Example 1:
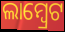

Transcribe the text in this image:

ଲାମ୍ୱ୍ରେଟ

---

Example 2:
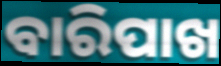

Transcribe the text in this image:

ବାରିପାଖ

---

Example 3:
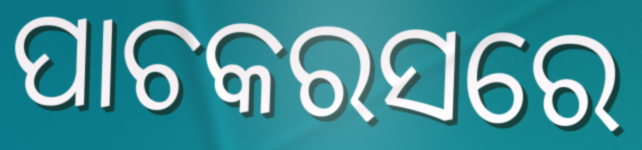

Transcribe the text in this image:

ପାଚକରସରେ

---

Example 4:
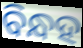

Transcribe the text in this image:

ବିନ୍ଧହ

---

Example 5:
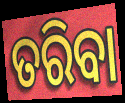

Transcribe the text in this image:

ତରିବା